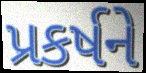
પ્રકર્ષને